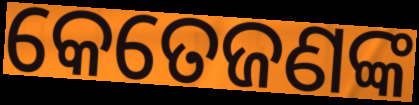
କେତେଜଣଙ୍କ